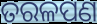
ତରଳପଣ